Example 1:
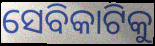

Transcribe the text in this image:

ସେବିକାଟିକୁ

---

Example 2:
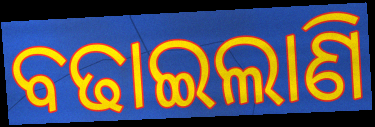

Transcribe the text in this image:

ବଢାଇଲାଣି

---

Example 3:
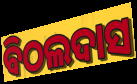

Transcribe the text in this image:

ବିଠଲଦାସ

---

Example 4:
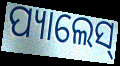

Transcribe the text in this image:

ପ୍ୟାଲେସ୍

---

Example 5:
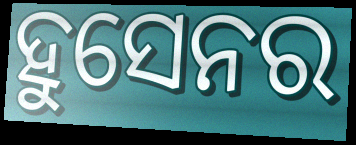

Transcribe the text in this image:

ହୁସେନର